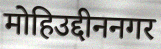
मोहिउद्दीननगर